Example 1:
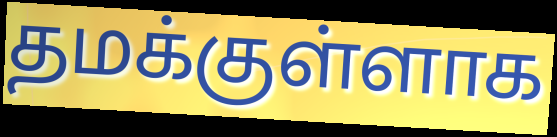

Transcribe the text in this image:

தமக்குள்ளாக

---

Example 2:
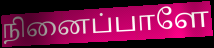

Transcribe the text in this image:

நினைப்பாளே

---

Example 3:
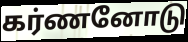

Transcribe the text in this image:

கர்ணனோடு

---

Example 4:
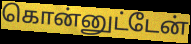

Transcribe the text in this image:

கொன்னுட்டேன்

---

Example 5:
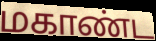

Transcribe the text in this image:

மகாண்ட